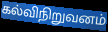
கல்விநிறுவனம்